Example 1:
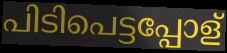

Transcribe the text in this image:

പിടിപെട്ടപ്പോള്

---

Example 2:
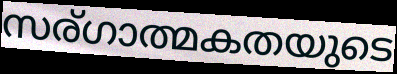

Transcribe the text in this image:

സര്ഗാത്മകതയുടെ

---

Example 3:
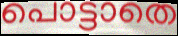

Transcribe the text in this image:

പൊട്ടാതെ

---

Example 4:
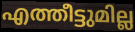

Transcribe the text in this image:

എത്തീട്ടുമില്ല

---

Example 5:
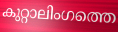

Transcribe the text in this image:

കുറ്റാലിംഗത്തെ